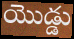
యొడ్డు